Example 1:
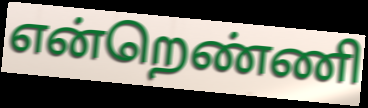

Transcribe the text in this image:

என்றெண்ணி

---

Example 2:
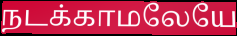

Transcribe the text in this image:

நடக்காமலேயே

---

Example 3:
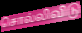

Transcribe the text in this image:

சொல்லிவிடு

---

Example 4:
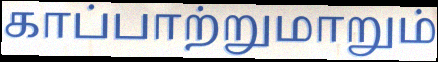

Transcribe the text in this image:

காப்பாற்றுமாறும்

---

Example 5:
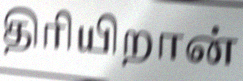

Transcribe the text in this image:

திரியிறான்